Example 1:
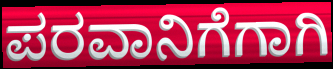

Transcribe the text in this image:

ಪರವಾನಿಗೆಗಾಗಿ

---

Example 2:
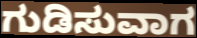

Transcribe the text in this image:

ಗುಡಿಸುವಾಗ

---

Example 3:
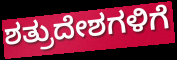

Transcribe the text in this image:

ಶತ್ರುದೇಶಗಳಿಗೆ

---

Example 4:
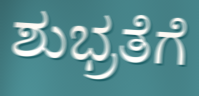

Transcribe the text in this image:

ಶುಭ್ರತೆಗೆ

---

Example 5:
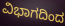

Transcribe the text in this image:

ವಿಭಾಗದಿಂದ